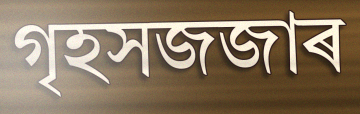
গৃহসজজাৰ